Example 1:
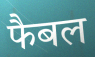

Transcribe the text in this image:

फैबल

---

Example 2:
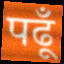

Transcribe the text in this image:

पढूँ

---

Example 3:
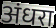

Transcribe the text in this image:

अंधरा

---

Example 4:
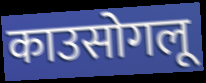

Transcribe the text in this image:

काउसोगलू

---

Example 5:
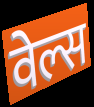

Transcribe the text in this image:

वेल्स